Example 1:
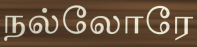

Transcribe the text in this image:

நல்லோரே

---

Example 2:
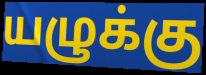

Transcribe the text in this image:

யழுக்கு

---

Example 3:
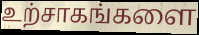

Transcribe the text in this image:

உற்சாகங்களை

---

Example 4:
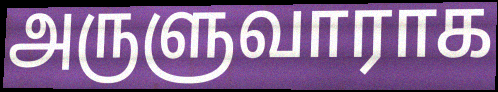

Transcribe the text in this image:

அருளுவாராக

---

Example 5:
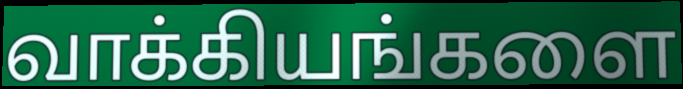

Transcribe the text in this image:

வாக்கியங்களை